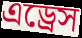
এড্রেস